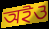
অইও